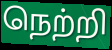
நெற்றி